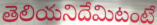
తెలియనిదేమిటంటే